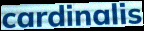
cardinalis